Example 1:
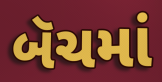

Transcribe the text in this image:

બૅચમાં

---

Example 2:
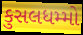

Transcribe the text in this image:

કુસલધમ્મો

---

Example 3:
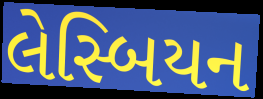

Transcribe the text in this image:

લેસ્બિયન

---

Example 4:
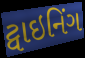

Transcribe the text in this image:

ટ્વાઇનિંગ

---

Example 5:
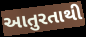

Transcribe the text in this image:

આતુરતાથી